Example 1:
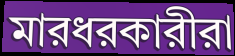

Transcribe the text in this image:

মারধরকারীরা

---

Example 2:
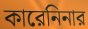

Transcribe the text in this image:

কারেনিনার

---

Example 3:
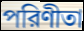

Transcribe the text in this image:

পরিণীতা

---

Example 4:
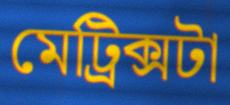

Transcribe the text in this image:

মেট্রিক্সটা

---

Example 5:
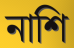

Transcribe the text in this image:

নাশি